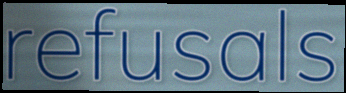
refusals